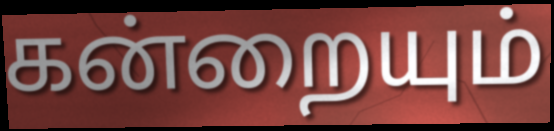
கன்றையும்